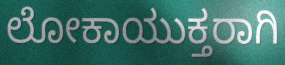
ಲೋಕಾಯುಕ್ತರಾಗಿ